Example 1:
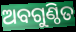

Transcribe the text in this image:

ଅବଗୁଣ୍ଠିତ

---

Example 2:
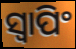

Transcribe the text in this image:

ସ୍ବାପିଂ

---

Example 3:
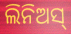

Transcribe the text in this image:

ଲିନିଅସ୍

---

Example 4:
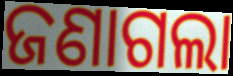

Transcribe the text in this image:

ଜଣାଗଲା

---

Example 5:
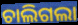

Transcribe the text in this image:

ଚାଲିଗଲା